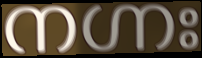
നഗ്നഃ